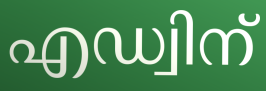
എഡ്വിന്